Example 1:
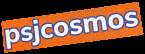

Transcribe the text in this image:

psjcosmos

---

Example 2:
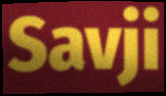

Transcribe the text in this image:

Savji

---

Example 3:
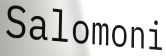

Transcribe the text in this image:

Salomoni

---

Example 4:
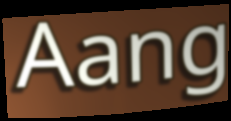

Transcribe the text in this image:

Aang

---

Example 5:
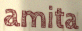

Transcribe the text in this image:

amita